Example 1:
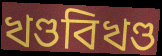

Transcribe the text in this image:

খণ্ডবিখণ্ড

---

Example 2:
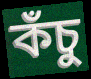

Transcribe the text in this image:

কঁচু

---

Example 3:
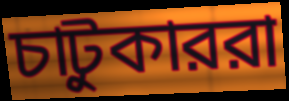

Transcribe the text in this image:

চাটুকাররা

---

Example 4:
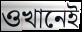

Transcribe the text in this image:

ওখানেই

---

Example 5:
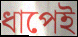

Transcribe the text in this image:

ধাপেই